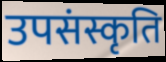
उपसंस्कृति